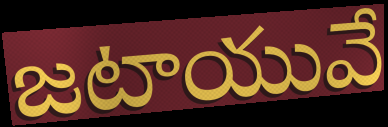
జటాయువే